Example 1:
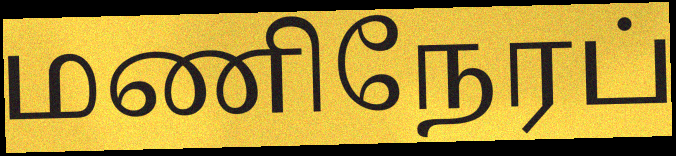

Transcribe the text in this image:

மணிநேரப்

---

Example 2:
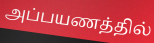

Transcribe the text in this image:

அப்பயணத்தில்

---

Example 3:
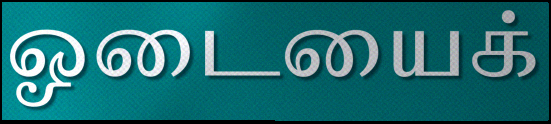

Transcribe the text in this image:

ஓடையைக்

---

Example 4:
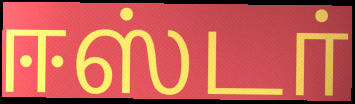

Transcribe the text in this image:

ஈஸ்டர்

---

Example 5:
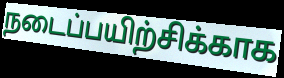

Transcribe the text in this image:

நடைப்பயிற்சிக்காக